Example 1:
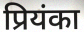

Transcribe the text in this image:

प्रियंका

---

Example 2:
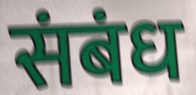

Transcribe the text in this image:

संबंध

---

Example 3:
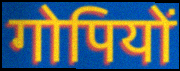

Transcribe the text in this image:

गोपियों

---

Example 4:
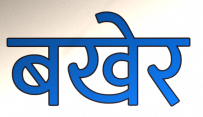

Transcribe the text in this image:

बखेर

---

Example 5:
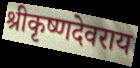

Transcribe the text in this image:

श्रीकृष्णदेवराय